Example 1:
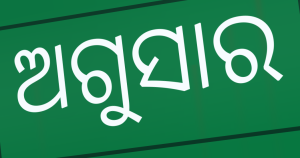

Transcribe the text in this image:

ଅଗୁସାର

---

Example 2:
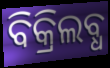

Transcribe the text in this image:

ବିକ୍ରିଲବ୍ଧ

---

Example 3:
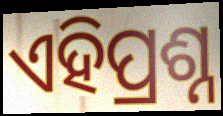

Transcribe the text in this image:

ଏହିପ୍ରଶ୍ନ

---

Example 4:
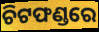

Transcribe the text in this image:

ଚିଟଫଣ୍ଡରେ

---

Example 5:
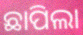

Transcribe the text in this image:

ଛାପିଲା